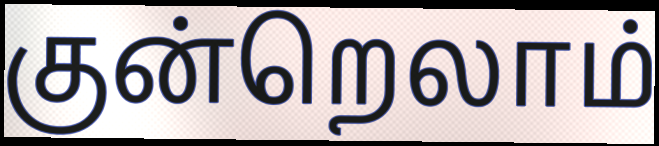
குன்றெலாம்